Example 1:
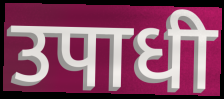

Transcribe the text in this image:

उपाधी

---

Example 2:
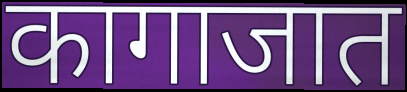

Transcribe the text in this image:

कागाजात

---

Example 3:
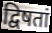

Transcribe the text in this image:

द्विषतां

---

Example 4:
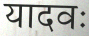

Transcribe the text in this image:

यादवः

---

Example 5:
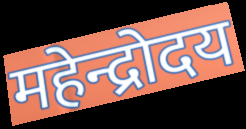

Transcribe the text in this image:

महेन्द्रोदय